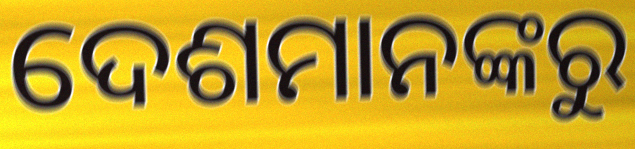
ଦେଶମାନଙ୍କରୁ